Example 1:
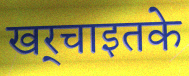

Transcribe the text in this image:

खर्चाइतके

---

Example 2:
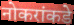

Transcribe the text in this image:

नोकरांकडे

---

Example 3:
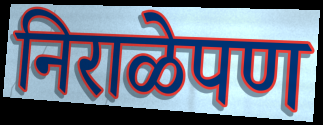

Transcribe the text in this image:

निराळेपण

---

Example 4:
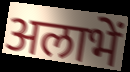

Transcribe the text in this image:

अलाभें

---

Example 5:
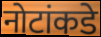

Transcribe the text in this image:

नोटांकडे